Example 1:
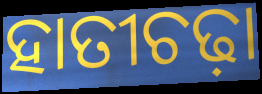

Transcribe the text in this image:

ହାତୀଚଢ଼ା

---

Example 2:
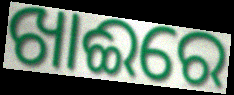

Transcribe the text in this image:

ଖାଈରେ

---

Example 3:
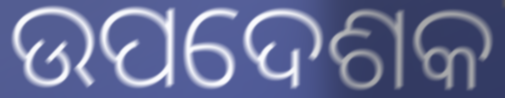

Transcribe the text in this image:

ଉପଦେଶକ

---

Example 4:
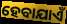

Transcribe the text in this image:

ହେବାଯାଏଁ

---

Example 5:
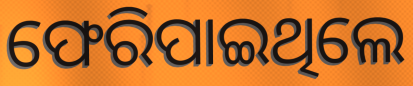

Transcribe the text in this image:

ଫେରିପାଇଥିଲେ